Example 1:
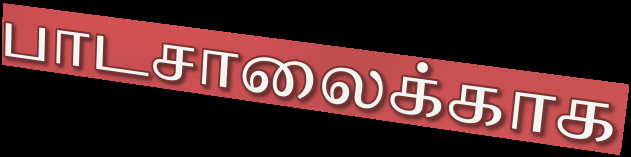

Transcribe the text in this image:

பாடசாலைக்காக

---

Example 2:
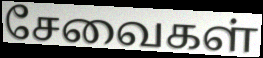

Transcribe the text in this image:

சேவைகள்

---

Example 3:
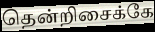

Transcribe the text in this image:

தென்றிசைக்கே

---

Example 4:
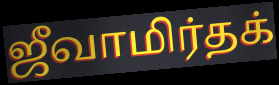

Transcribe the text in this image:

ஜீவாமிர்தக்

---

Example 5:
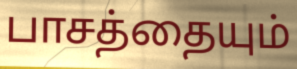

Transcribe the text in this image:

பாசத்தையும்